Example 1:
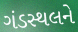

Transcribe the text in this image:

ગંડસ્થલને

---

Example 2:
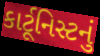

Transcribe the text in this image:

કાર્ટૂનિસ્ટનું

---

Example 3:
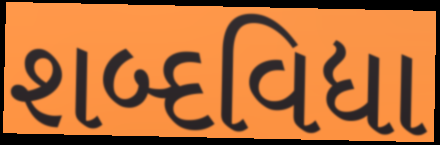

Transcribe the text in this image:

શબ્દવિદ્યા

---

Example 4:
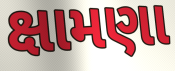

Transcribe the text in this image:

ક્ષામણા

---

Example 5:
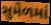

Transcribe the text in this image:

સુમેળમાં